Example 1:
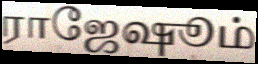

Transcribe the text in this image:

ராஜேஷூம்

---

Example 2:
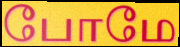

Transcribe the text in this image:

போமே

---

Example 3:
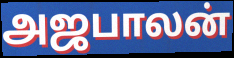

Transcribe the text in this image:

அஜபாலன்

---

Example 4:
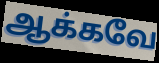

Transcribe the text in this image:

ஆக்கவே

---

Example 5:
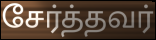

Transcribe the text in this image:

சேர்த்தவர்